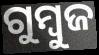
ଗୁମ୍ବୁଜ